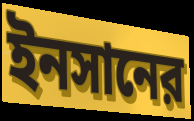
ইনসানের